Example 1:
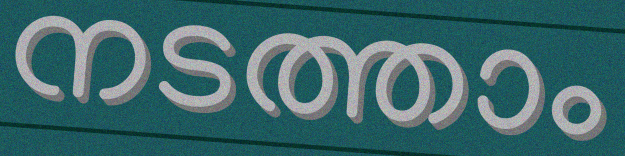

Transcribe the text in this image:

നടത്താം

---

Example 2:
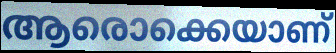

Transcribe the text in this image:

ആരൊക്കെയാണ്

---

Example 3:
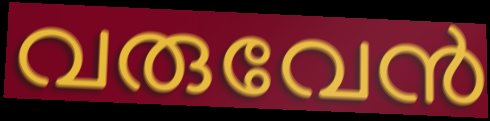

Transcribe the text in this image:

വരുവേൻ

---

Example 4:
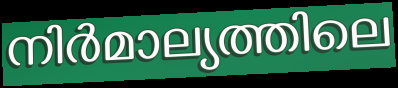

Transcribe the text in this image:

നിർമാല്യത്തിലെ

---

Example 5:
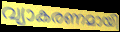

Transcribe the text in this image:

വ്യാകരണമായി